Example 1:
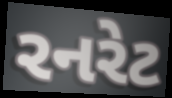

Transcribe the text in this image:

રનરેટ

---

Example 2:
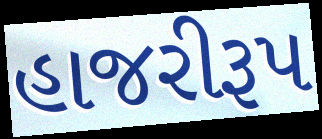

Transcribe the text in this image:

હાજરીરૂપ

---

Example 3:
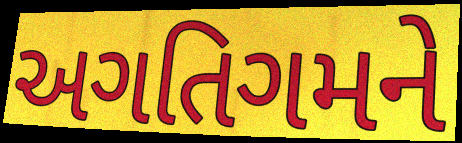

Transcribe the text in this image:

અગતિગમને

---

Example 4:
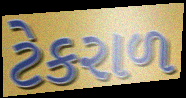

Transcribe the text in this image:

ટેકરાળ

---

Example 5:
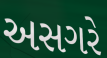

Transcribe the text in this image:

અસગરે